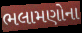
ભલામણોના